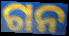
ଗନ